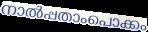
നാൽപ്പതാംപൊക്കം